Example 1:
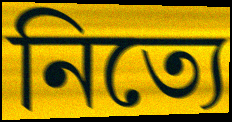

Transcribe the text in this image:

নিত্যে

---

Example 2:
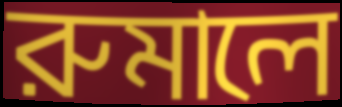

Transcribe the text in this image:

রুমালে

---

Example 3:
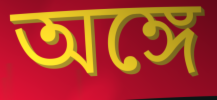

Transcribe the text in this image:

অঙ্গে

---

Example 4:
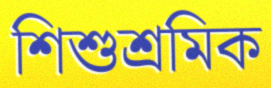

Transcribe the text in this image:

শিশুশ্রমিক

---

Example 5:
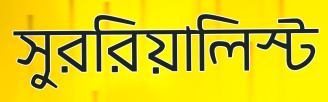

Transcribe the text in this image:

সুররিয়ালিস্ট